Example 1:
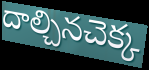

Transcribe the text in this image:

దాల్చినచెక్క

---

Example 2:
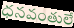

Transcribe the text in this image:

ధనవంతులే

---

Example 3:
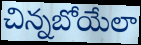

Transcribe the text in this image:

చిన్నబోయేలా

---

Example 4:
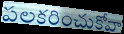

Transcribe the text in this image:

పలకరించుకోవా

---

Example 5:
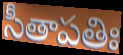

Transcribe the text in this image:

సీతాపతిః